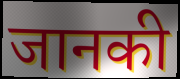
जानकी